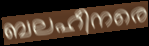
ബലഹീനരെ